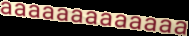
aaaaaaaaaaaaa